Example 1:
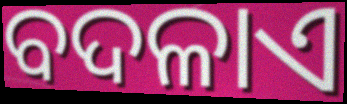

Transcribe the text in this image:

ବଦଳାଏ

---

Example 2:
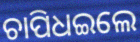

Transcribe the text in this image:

ଚାପିଧଇଲେ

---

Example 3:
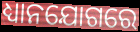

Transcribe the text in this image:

ଧ୍ୟାନଯୋଗରେ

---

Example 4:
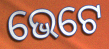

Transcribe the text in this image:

ଭେଟେ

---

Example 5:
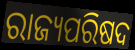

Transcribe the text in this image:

ରାଜ୍ୟପରିଷଦ